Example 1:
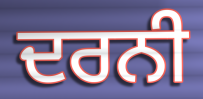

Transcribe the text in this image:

ਦਰਨੀ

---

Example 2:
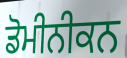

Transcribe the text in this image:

ਡੋਮੀਨੀਕਨ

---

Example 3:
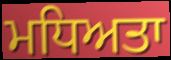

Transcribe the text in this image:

ਮਧਿਅਤਾ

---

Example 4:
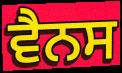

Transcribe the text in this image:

ਵੈਨਸ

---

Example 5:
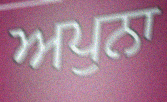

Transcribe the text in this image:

ਅਪੁਨਾ